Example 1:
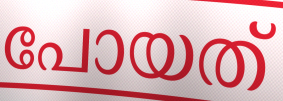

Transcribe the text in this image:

പോയത്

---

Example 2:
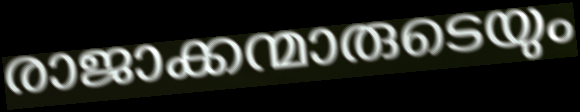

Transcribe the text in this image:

രാജാക്കന്മാരുടെയും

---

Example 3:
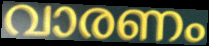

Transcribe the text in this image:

വാരണം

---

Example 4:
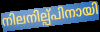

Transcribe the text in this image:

നിലനില്പ്പിനായി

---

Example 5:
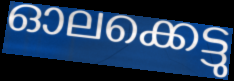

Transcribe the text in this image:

ഓലക്കെട്ടു